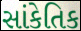
સાંકેતિક